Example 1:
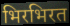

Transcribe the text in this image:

भिरभिरत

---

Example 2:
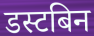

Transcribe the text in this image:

डस्टबिन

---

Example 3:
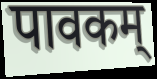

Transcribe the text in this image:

पावकम्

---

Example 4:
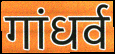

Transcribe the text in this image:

गांधर्व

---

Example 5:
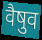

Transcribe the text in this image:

वैषुव